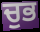
ਚੁਭ